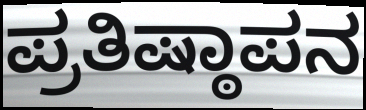
ಪ್ರತಿಷ್ಠಾಪನ